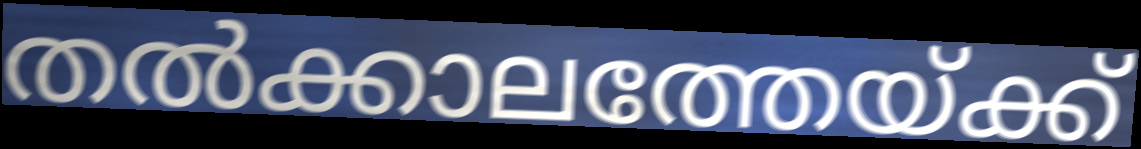
തൽക്കാലത്തേയ്ക്ക്